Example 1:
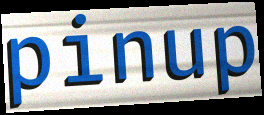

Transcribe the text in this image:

pinup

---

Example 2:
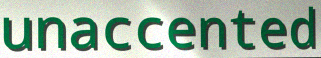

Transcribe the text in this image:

unaccented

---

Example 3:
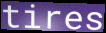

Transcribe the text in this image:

tires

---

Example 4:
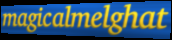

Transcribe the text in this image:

magicalmelghat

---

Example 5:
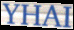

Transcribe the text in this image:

YHAI